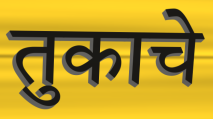
तुकाचे